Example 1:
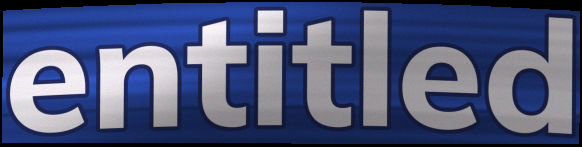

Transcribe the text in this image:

entitled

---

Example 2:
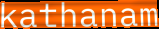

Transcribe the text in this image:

kathanam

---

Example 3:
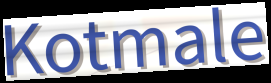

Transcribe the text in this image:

Kotmale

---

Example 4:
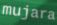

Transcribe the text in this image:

mujara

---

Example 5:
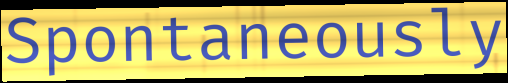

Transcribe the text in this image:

Spontaneously